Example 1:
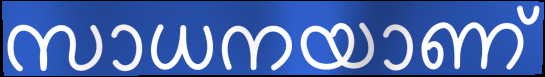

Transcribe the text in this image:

സാധനയാണ്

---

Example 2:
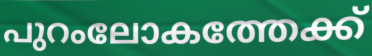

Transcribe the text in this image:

പുറംലോകത്തേക്ക്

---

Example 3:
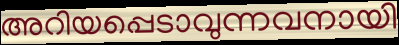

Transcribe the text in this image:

അറിയപ്പെടാവുന്നവനായി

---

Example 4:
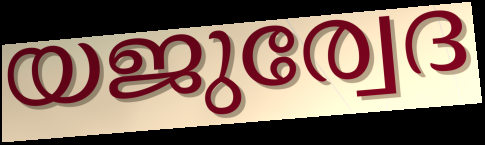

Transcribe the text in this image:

യജുര്വേദ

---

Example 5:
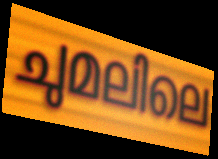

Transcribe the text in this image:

ചുമലിലെ